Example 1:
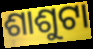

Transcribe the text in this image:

ଶାଶୁଟା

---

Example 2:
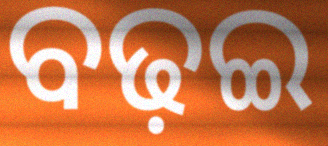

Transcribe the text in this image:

ବଢ଼ଇ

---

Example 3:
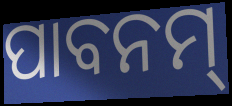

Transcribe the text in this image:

ପାବନମ୍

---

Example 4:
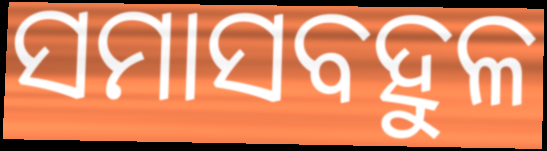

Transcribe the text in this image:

ସମାସବହୁଳ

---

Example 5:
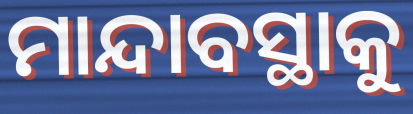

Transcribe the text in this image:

ମାନ୍ଦାବସ୍ଥାକୁ